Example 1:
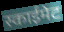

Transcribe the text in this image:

स्काईमेट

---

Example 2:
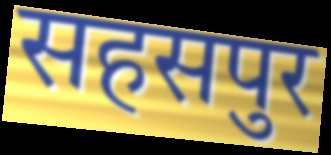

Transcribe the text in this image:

सहसपुर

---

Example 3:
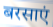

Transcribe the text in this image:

बरसाएं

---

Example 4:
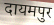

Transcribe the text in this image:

दायमपुर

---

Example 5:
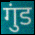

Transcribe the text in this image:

गुंड